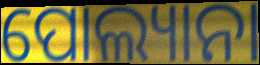
ପୋଲ୍ୟାନା